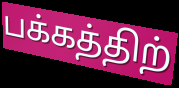
பக்கத்திற்